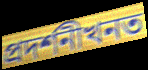
প্ৰদৰ্শনীখনত